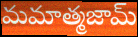
మమాత్మజామ్